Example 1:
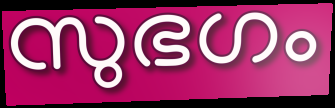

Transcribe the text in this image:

സുഭഗം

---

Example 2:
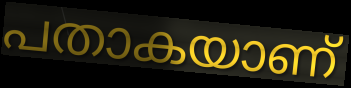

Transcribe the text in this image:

പതാകയാണ്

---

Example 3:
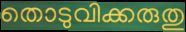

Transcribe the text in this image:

തൊടുവിക്കരുതു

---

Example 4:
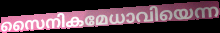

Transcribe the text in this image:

സൈനികമേധാവിയെന്ന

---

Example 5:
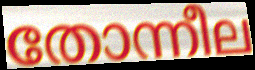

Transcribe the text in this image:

തോന്നീല